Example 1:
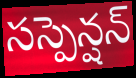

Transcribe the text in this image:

సస్పెన్షన్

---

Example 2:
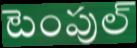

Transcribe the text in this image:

టెంపుల్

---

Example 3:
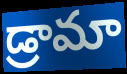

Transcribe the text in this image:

డ్రామా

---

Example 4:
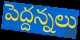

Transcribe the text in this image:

పెద్దన్నలు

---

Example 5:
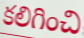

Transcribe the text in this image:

కలిగించి